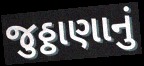
જુઠ્ઠાણાનું